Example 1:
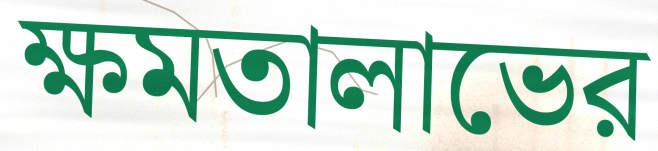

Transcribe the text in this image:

ক্ষমতালাভের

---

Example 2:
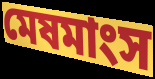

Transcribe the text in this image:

মেষমাংস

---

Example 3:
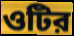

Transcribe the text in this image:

ওটির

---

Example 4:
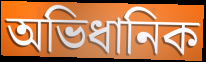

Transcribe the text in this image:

অভিধানিক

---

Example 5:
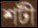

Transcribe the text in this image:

শটী